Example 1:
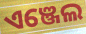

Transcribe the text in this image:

ଏଞ୍ଜେଲ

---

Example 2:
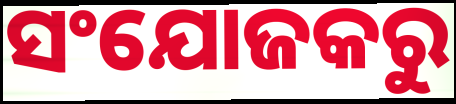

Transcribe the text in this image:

ସଂଯୋଜକରୁ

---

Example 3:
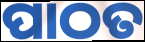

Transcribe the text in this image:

ପାଠତ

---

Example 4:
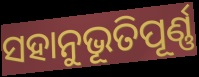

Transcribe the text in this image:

ସହାନୁଭୂତିପୂର୍ଣ୍ଣ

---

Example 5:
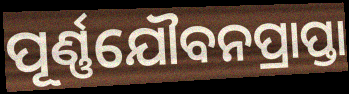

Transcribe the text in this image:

ପୂର୍ଣ୍ଣଯୌବନପ୍ରାପ୍ତା